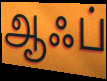
ஆஃப்